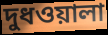
দুধওয়ালা